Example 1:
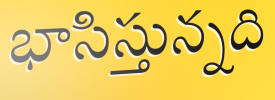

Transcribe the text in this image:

భాసిస్తున్నది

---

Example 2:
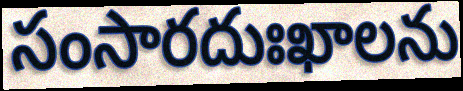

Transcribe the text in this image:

సంసారదుఃఖాలను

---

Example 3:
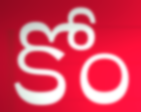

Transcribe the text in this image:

కోం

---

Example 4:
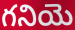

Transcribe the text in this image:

గనియె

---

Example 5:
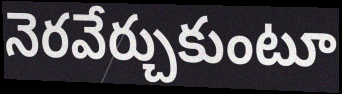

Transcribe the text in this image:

నెరవేర్చుకుంటూ